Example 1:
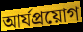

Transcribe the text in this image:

আর্যপ্রয়োগ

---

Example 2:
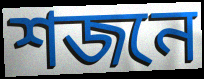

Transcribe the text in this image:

শজনে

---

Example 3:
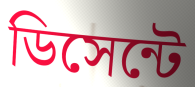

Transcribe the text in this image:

ডিসেন্টে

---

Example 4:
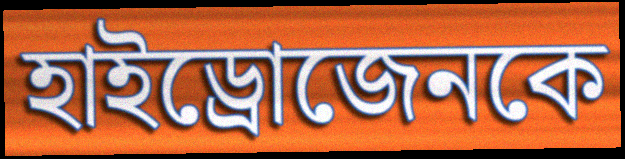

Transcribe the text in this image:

হাইড্রোজেনকে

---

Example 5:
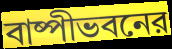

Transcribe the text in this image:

বাষ্পীভবনের